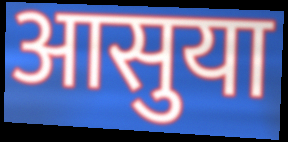
आसुया